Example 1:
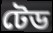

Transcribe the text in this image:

টেড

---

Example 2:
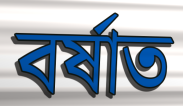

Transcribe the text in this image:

বৰ্ষাত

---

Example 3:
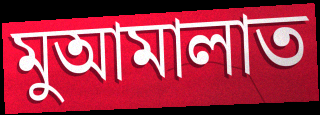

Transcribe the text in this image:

মুআমালাত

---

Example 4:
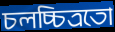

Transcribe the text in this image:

চলচ্চিত্ৰতো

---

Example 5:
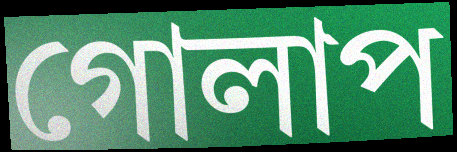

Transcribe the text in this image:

গোলাপ